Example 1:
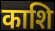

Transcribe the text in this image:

काशि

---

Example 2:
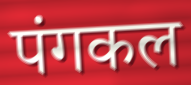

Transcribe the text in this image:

पंगकल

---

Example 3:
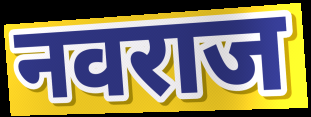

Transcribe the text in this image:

नवराज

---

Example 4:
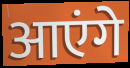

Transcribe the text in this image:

आएंगे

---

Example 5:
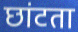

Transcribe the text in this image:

छांटता